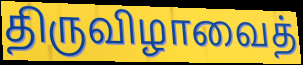
திருவிழாவைத்